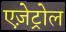
एज़ेट्रोल